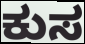
ಕುಸ